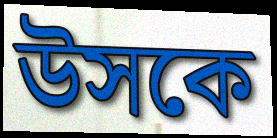
উসকে